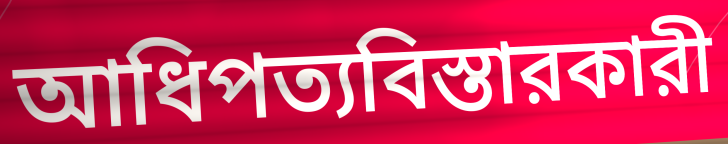
আধিপত্যবিস্তারকারী